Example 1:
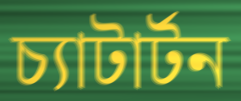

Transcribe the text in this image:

চ্যাটার্টন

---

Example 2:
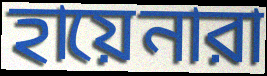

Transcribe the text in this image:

হায়েনারা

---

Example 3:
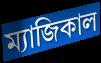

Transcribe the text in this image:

ম্যাজিকাল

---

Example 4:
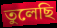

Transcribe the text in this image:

তুলেছি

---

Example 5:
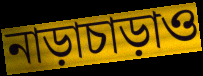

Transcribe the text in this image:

নাড়াচাড়াও